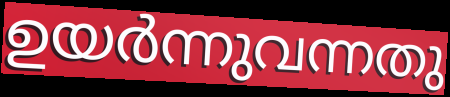
ഉയർന്നുവന്നതു